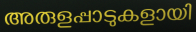
അരുളപ്പാടുകളായി